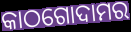
କାଠଗୋଦାମର